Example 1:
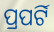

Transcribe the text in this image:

ପ୍ରପର୍ଟି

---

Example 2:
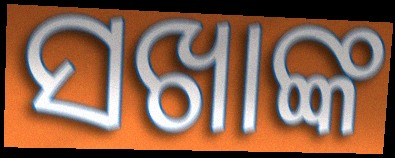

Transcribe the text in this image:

ସଖାଙ୍କ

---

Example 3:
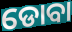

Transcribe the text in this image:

ଡୋବା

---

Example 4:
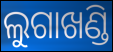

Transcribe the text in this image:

ଲୁଗାଖଣ୍ଡି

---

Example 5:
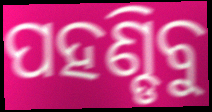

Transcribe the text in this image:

ପହଣ୍ଡିବୁ